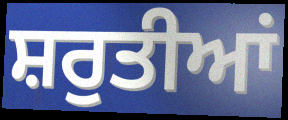
ਸ਼ਰੁਤੀਆਂ